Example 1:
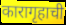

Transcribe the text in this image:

कारागृहाची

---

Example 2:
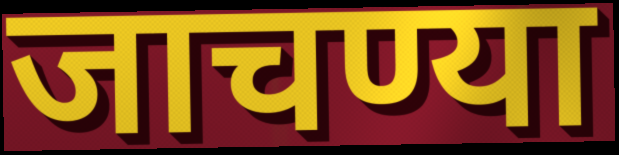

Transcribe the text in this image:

जाचण्या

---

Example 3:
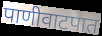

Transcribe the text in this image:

पाणीवाटपात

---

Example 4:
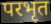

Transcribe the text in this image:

परभृत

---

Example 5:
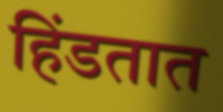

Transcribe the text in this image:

हिंडतात